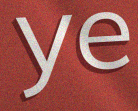
ye